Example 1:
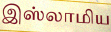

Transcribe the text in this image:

இஸ்லாமிய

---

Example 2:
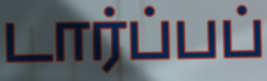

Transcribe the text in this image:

டார்ப்பப்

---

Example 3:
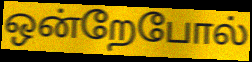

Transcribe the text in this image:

ஒன்றேபோல்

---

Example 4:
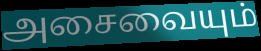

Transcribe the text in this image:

அசைவையும்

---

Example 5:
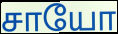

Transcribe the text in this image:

சாயோ